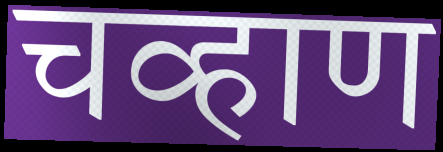
चव्हाण